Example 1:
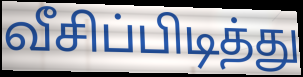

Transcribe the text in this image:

வீசிப்பிடித்து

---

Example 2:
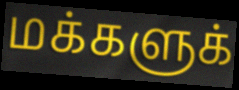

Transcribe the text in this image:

மக்களுக்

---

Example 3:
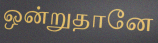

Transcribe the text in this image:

ஒன்றுதானே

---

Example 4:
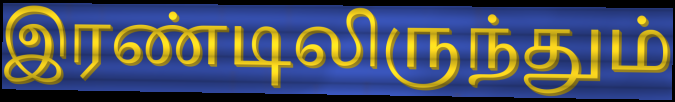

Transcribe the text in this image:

இரண்டிலிருந்தும்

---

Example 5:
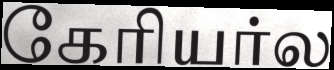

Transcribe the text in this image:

கேரியர்ல